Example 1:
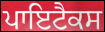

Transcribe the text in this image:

ਪਾਇਟੈਕਸ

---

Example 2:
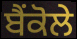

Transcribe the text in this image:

ਬੈਂਕੋਲੇ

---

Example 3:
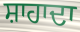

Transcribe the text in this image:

ਸ਼ਾਹਾਦਾ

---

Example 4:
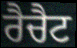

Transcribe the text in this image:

ਰੈਚੈਟ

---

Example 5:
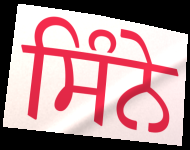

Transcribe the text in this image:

ਸਿੰਨੇ